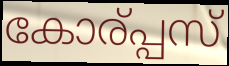
കോര്പ്പസ്